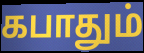
கபாதும்